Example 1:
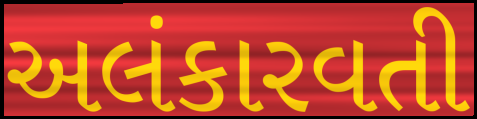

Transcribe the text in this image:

અલંકારવતી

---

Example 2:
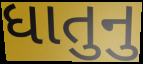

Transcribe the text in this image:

ધાતુનુ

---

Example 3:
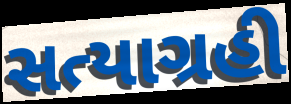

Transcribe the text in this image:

સત્યાગ્રહી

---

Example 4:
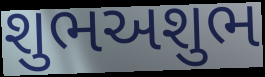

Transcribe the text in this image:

શુભઅશુભ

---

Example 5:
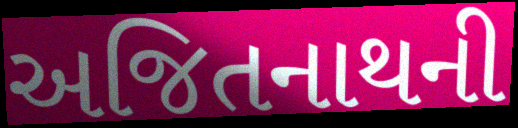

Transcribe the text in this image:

અજિતનાથની